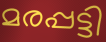
മരപ്പട്ടി